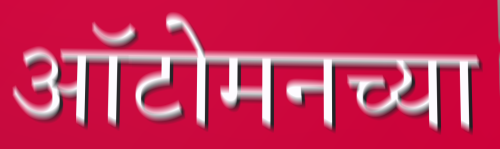
ऑटोमनच्या